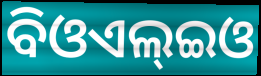
ବିଓଏଲ୍ଇଓ